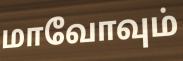
மாவோவும்